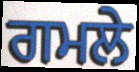
ਗਮਲੇ